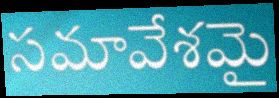
సమావేశమై